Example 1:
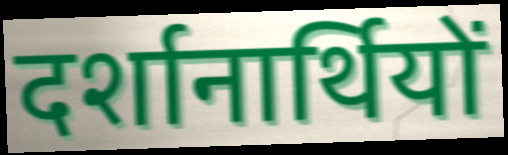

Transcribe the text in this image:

दर्शानार्थियों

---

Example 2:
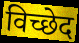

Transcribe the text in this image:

विच्छेद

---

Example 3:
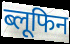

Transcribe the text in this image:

ब्लूफिन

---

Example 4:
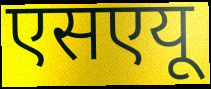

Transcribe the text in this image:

एसएयू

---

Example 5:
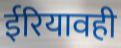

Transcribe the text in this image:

ईरियावही